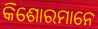
କିଶୋରମାନେ